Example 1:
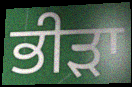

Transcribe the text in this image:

ਭੀੜਾ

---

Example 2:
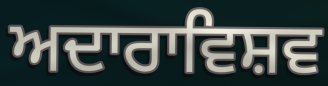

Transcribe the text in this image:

ਅਦਾਰਾਵਿਸ਼ਵ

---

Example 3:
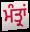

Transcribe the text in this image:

ਮੰਤ੍ਰਾਂ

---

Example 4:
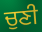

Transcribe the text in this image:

ਚੁਣੀ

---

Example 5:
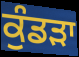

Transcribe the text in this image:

ਕੁੰਡੜਾ